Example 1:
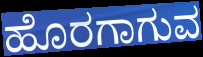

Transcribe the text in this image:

ಹೊರಗಾಗುವ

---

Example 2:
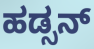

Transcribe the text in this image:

ಹಡ್ಸನ್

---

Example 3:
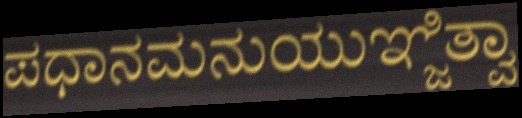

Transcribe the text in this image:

ಪಧಾನಮನುಯುಞ್ಜಿತ್ವಾ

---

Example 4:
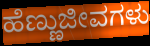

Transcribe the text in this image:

ಹೆಣ್ಣುಜೀವಗಳು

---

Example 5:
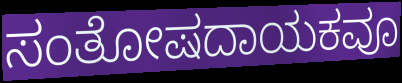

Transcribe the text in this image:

ಸಂತೋಷದಾಯಕವೂ